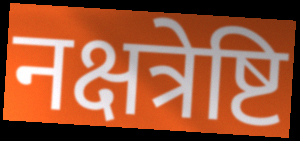
नक्षत्रेष्टि